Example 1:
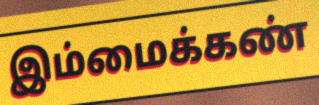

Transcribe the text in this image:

இம்மைக்கண்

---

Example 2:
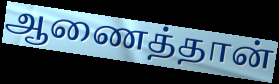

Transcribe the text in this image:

ஆணைத்தான்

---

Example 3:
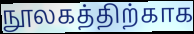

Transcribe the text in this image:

நூலகத்திற்காக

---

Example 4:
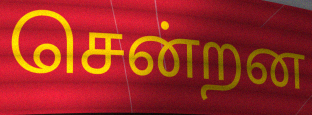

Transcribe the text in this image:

சென்றன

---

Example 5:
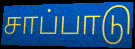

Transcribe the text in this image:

சாப்பாடு